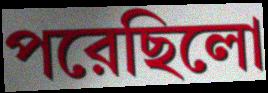
পরেছিলো